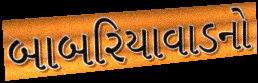
બાબરિયાવાડનો